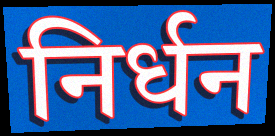
निर्धन